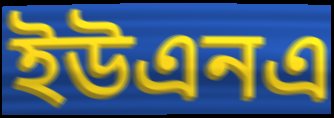
ইউএনএ